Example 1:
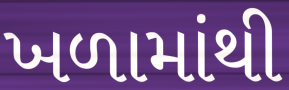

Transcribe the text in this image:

ખળામાંથી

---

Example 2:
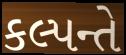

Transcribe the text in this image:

કલ્પન્તે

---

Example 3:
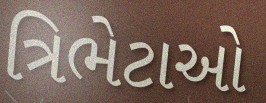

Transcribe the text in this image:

ત્રિભેટાઓ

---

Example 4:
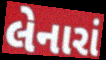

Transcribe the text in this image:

લેનારાં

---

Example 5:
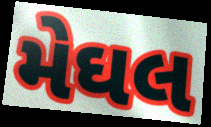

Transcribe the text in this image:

મેઘલ